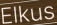
Elkus